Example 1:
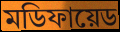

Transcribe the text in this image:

মডিফায়েড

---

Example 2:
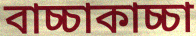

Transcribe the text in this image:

বাচ্চাকাচ্চা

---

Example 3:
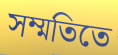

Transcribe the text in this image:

সম্মতিতে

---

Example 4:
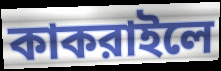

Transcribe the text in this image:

কাকরাইলে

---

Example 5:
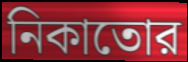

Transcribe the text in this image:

নিকাতোর